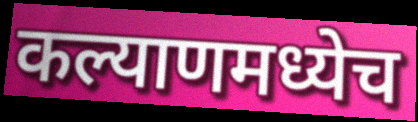
कल्याणमध्येच